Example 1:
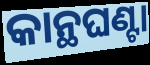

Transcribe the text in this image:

କାନ୍ଥଘଣ୍ଟା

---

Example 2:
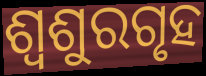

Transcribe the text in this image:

ଶ୍ୱଶୁରଗୃହ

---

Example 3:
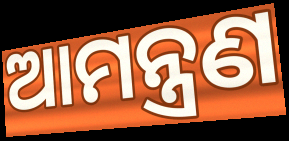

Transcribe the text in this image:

ଆମନ୍ତ୍ରଣ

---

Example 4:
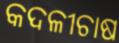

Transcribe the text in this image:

କଦଳୀଚାଷ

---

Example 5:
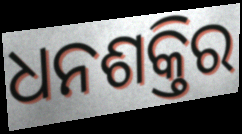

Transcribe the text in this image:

ଧନଶକ୍ତିର